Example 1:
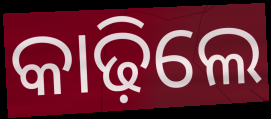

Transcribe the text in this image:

କାଢ଼ିଲେ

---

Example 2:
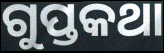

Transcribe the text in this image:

ଗୁପ୍ତକଥା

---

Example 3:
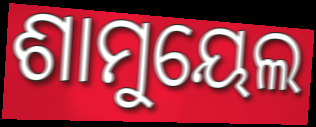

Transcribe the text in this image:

ଶାମୁୟେଲ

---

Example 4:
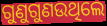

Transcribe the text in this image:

ଗୁଣୁଗୁଣଉଥିଲେ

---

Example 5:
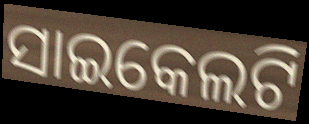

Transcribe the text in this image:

ସାଇକେଲଟି